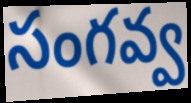
సంగవ్వ